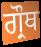
ਗ੍ਰੌਥ